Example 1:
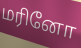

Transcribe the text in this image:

மரினோ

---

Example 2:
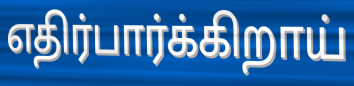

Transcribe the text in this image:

எதிர்பார்க்கிறாய்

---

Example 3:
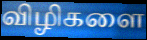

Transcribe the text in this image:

விழிகளை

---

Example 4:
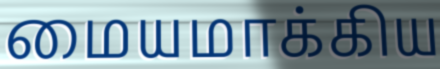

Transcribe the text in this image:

மையமாக்கிய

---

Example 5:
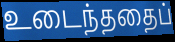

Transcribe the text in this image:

உடைந்ததைப்